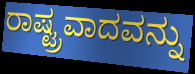
ರಾಷ್ಟ್ರವಾದವನ್ನು